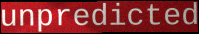
unpredicted